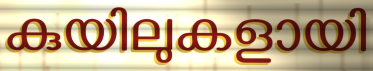
കുയിലുകളായി